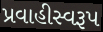
પ્રવાહીસ્વરૂપ